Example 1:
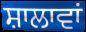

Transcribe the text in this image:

ਸ਼ਾਲਾਵਾਂ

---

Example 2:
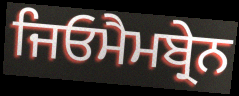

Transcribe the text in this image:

ਜਿਓਮੈਮਬ੍ਰੇਨ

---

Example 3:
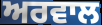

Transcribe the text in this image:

ਅਰਵਾਲ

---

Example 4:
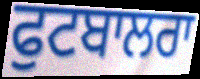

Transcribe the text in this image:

ਫੁਟਬਾਲਰਾ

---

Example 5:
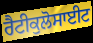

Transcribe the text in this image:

ਰੈਟੀਕੁਲੋਸਾਈਟ